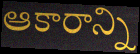
ఆకారాన్ని